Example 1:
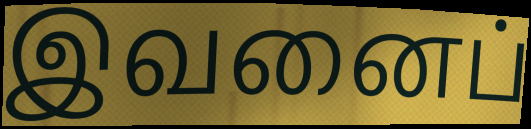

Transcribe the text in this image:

இவனைப்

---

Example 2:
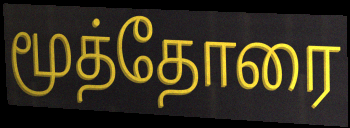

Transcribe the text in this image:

மூத்தோரை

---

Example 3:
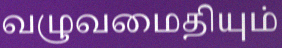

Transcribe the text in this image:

வழுவமைதியும்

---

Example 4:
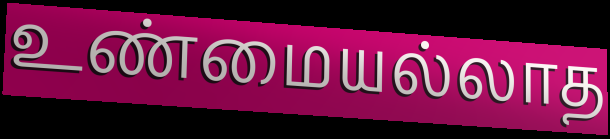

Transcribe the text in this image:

உண்மையல்லாத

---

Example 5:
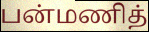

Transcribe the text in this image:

பன்மணித்